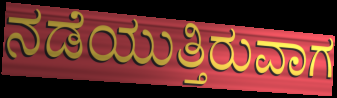
ನಡೆಯುತ್ತಿರುವಾಗ